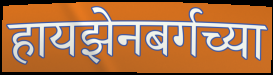
हायझेनबर्गच्या